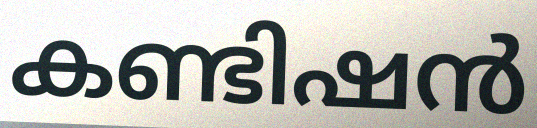
കണ്ടിഷൻ